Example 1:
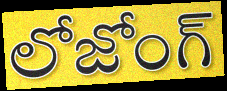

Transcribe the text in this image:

లోజోంగ్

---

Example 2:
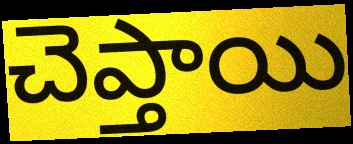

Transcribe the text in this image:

చెప్తాయి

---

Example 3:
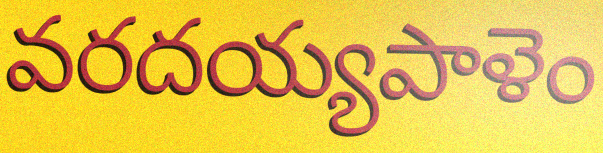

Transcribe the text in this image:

వరదయ్యపాళెం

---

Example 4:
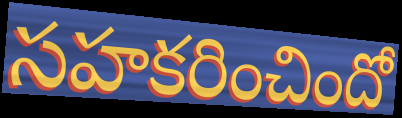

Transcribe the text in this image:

సహకరించిందో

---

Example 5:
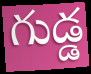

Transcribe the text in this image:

గుడ్డ